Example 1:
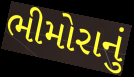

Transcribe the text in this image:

ભીમોરાનું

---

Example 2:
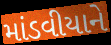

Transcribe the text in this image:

માંડવીયાને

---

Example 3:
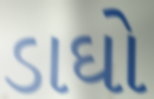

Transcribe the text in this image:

ડાઘો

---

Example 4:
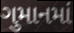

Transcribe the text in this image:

ગુમાનમાં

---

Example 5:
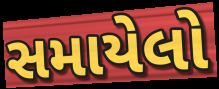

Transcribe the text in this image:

સમાયેલો